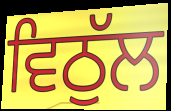
ਵਿਠੁੱਲ